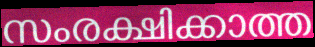
സംരക്ഷിക്കാത്ത